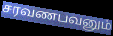
சரவணபவனும்